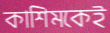
কাশিমকেই